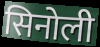
सिनोली